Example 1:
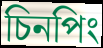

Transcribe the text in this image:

চিনপিং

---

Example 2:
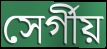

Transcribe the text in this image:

সের্গীয়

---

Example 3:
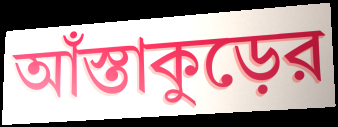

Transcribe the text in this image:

আঁস্তাকুড়ের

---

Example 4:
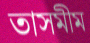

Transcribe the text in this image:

তাসমীম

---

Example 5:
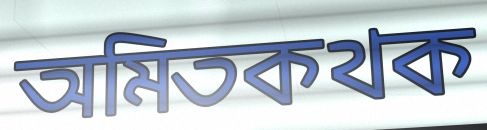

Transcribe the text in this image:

অমিতকথক